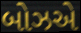
બોઝએ